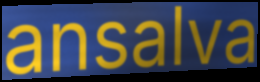
ansalva